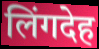
लिंगदेह